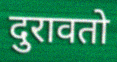
दुरावतो